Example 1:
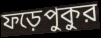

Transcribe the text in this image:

ফড়েপুকুর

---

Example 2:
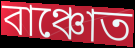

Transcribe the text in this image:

বাঞ্চোত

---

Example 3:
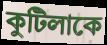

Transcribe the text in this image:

কুটিলাকে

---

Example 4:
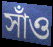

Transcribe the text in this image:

সাঁও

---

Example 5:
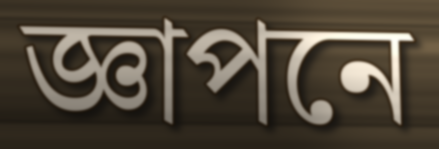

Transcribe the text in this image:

জ্ঞাপনে